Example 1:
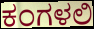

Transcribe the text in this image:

ಕಂಗಳಲಿ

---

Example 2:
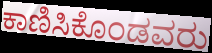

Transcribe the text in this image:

ಕಾಣಿಸಿಕೊಂಡವರು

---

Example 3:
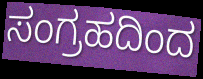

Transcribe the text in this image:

ಸಂಗ್ರಹದಿಂದ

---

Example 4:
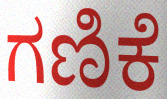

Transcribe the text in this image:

ಗಣಿಕೆ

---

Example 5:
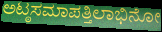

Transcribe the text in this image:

ಅಟ್ಠಸಮಾಪತ್ತಿಲಾಭಿನೋ